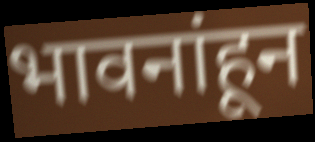
भावनांहून